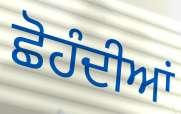
ਛੋਹੰਦੀਆਂ